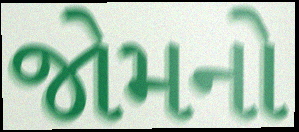
જોમનો